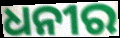
ଧନୀର